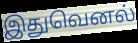
இதுவெனல்